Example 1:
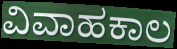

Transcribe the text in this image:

ವಿವಾಹಕಾಲ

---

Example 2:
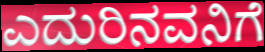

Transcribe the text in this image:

ಎದುರಿನವನಿಗೆ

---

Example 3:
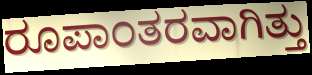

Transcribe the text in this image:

ರೂಪಾಂತರವಾಗಿತ್ತು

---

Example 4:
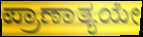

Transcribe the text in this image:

ಪ್ರಾಣಾತ್ಯಯೇ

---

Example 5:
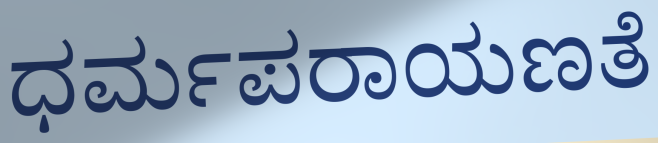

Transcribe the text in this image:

ಧರ್ಮಪರಾಯಣತೆ